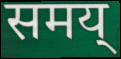
समय्